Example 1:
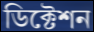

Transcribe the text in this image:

ডিক্টেশন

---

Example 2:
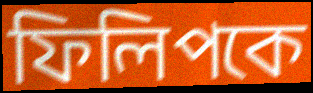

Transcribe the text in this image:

ফিলিপকে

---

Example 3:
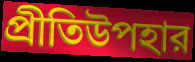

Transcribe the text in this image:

প্রীতিউপহার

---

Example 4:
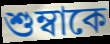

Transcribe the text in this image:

শুম্বাকে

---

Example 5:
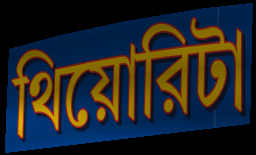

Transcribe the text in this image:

থিয়োরিটা